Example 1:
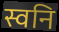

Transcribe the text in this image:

स्वनि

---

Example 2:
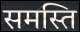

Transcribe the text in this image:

समस्ति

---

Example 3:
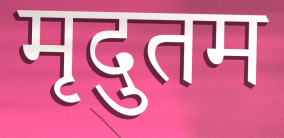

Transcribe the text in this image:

मृदुतम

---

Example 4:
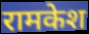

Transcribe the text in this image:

रामकेश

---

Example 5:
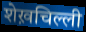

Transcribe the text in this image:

शेख़चिल्ली